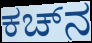
ಕಚ್‌ನ